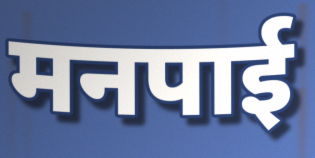
मनपाई